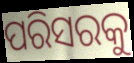
ପରିସରକୁ